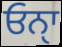
ਓਨਾੑ